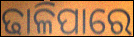
ଢାଳିପାରେ